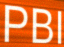
PBI